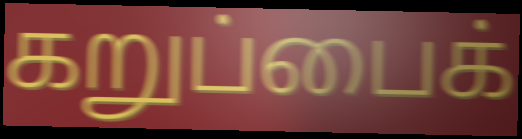
கறுப்பைக்